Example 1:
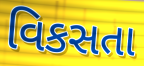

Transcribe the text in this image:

વિકસતા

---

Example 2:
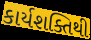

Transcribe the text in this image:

કાર્યશક્તિથી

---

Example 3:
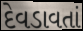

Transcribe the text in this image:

દેવડાવતાં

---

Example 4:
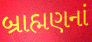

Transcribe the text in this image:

બ્રાહ્મણનાં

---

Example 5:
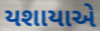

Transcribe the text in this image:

યશાયાએ